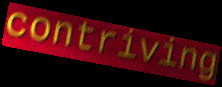
contriving